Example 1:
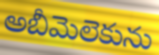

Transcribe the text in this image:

అబీమెలెకును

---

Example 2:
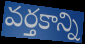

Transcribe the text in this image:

వర్తకాన్ని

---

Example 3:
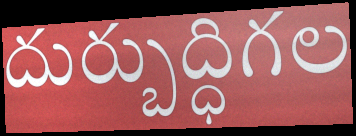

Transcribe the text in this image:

దుర్బుద్ధిగల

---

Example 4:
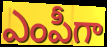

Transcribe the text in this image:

ఎంపీగా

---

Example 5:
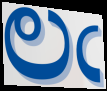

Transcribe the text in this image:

లఁ